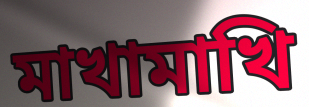
মাখামাখি